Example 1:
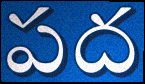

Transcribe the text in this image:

పద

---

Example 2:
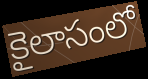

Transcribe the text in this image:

కైలాసంలో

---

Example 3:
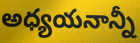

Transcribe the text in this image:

అధ్యయనాన్నీ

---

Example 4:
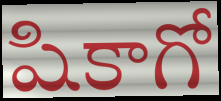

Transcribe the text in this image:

షికాగో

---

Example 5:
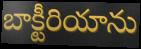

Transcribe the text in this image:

బాక్టీరియాను